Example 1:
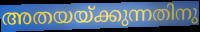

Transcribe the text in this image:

അതയയ്ക്കുന്നതിനു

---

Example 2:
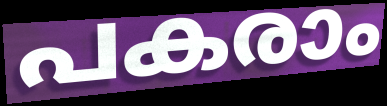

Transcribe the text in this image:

പകരാം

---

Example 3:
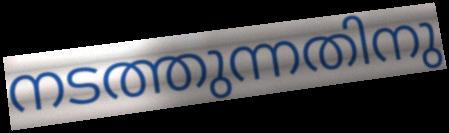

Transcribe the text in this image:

നടത്തുന്നതിനു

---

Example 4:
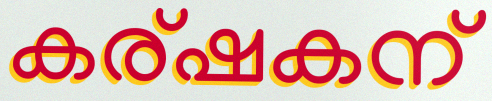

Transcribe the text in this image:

കര്ഷകന്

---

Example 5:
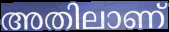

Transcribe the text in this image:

അതിലാണ്